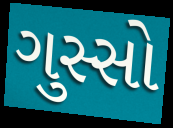
ગુસ્સો